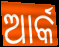
ଆର୍କ